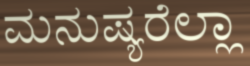
ಮನುಷ್ಯರೆಲ್ಲಾ